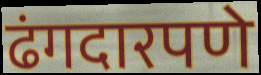
ढंगदारपणे